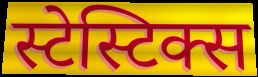
स्टेस्टिक्स